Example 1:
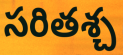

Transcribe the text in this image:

సరితశ్చ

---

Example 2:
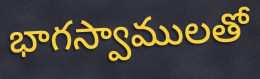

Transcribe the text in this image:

భాగస్వాములతో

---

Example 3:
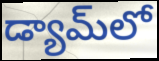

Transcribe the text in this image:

డ్యామ్‌లో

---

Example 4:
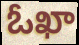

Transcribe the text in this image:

ఓఖా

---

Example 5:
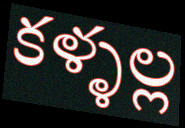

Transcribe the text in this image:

కళ్ళల్ల